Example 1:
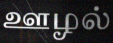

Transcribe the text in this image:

ஊழல்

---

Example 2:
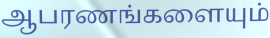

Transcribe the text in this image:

ஆபரணங்களையும்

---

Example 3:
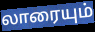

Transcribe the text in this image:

லாரையும்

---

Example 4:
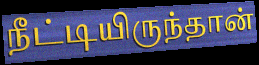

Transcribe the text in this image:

நீட்டியிருந்தான்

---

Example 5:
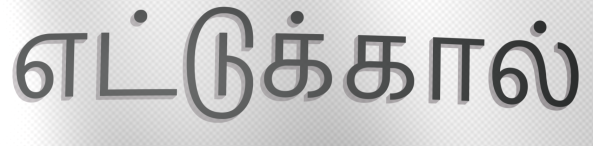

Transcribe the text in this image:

எட்டுக்கால்